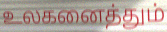
உலகனைத்தும்